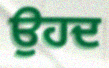
ਉਹਦ